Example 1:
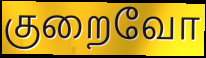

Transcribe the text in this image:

குறைவோ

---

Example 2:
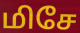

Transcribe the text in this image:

மிசே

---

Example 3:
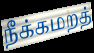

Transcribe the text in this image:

நீக்கமறத்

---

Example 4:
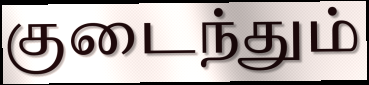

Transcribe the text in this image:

குடைந்தும்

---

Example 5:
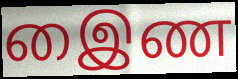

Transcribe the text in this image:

இைண